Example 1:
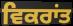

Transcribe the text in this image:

ਵਿਕਰਾਂਤ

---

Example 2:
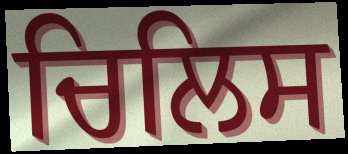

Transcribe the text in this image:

ਚਿਲਿਸ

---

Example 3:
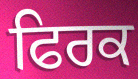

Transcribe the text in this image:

ਫਿਰਕ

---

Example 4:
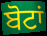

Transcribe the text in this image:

ਬੋਟਾਂ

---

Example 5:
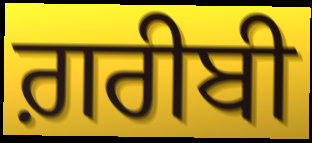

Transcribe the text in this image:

ਗ਼ਰੀਬੀ